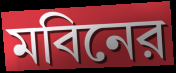
মবিনের